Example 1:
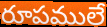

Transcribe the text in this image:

రూపములే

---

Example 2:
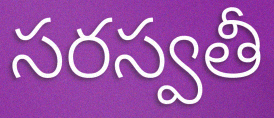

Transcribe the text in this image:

సరస్వతీ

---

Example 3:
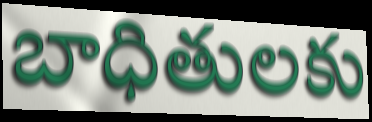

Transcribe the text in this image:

బాధితులకు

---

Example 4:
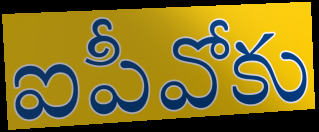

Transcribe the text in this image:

ఐపీవోకు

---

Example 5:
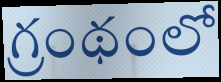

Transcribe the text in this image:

గ్రంథంలో